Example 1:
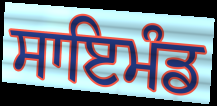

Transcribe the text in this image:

ਸਾਇਮੰਡ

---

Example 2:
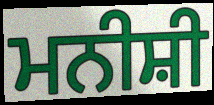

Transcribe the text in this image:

ਮਨੀਸ਼ੀ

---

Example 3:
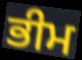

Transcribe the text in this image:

ਭੀਮ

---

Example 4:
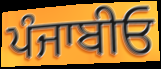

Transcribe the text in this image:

ਪੰਜਾਬੀਓ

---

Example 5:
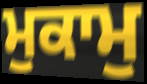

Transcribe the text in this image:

ਮੁਕਾਮੁ